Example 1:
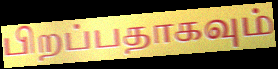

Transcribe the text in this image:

பிறப்பதாகவும்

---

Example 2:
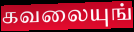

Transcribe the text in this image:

கவலையுங்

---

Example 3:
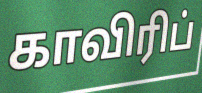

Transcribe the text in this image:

காவிரிப்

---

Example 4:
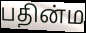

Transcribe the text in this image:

பதின்ம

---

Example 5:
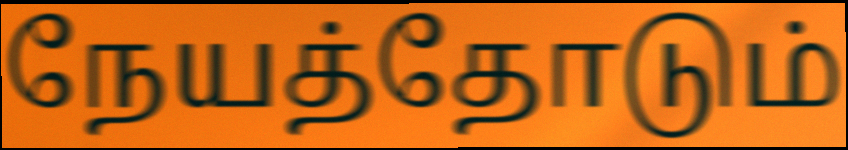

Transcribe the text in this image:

நேயத்தோடும்